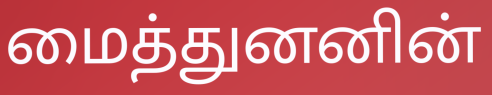
மைத்துனனின்